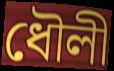
ধৌলী